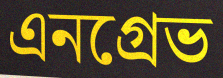
এনগ্রেভ